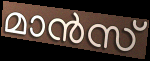
മാൻസ്